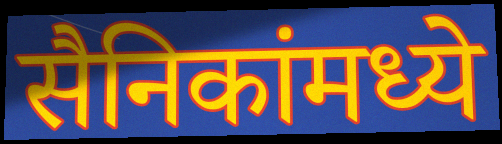
सैनिकांमध्ये